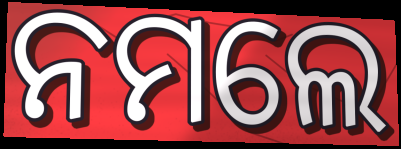
ନମଲେ